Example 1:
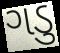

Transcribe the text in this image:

ગડુ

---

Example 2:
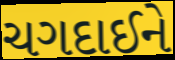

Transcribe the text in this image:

ચગદાઈને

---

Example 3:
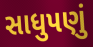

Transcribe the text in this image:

સાધુપણું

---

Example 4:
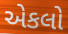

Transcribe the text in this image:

એકલો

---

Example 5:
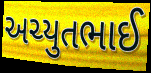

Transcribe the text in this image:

અચ્યુતભાઈ